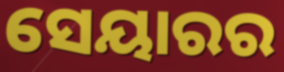
ସେୟାରର